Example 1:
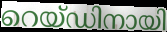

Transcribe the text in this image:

റെയ്ഡിനായി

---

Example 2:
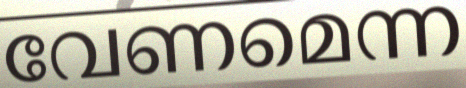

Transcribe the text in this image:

വേണമെന്ന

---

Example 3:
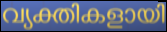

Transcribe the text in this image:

വ്യക്തികളായി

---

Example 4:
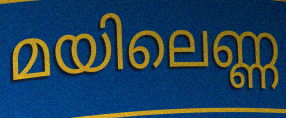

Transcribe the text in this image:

മയിലെണ്ണ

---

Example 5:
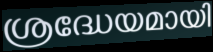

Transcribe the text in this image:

ശ്രദ്ധേയമായി